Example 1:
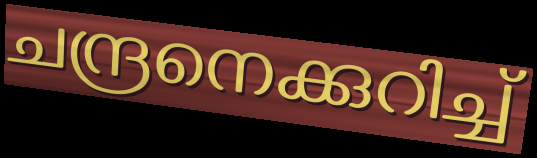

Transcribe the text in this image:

ചന്ദ്രനെക്കുറിച്ച്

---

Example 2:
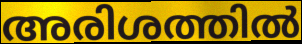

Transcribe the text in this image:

അരിശത്തിൽ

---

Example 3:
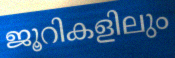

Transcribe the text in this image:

ജൂറികളിലും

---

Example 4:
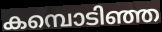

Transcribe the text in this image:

കമ്പൊടിഞ്ഞ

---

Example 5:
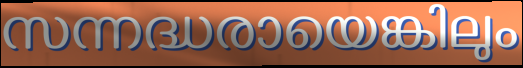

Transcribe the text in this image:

സന്നദ്ധരായെങ്കിലും